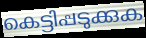
കെട്ടിപ്പടുക്കുക